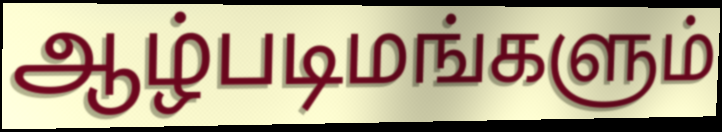
ஆழ்படிமங்களும்